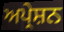
ਅਪ੍ਰੇਸ਼ਨ